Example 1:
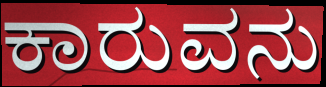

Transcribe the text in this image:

ಕಾರುವನು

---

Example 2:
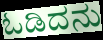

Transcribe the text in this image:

ಓಡಿದನು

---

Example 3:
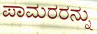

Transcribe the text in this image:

ಪಾಮರರನ್ನು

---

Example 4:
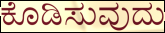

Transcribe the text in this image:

ಕೊಡಿಸುವುದು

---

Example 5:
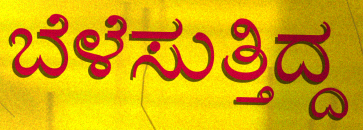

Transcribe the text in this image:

ಬೆಳೆಸುತ್ತಿದ್ದ